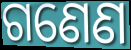
ଗଣେଣ